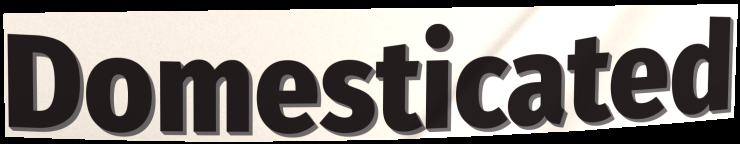
Domesticated